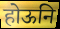
होऊनि